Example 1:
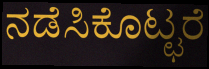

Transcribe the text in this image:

ನಡೆಸಿಕೊಟ್ಟರೆ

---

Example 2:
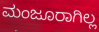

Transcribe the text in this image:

ಮಂಜೂರಾಗಿಲ್ಲ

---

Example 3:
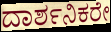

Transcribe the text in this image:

ದಾರ್ಶನಿಕರೇ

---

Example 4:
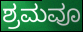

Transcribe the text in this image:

ಶ್ರಮವೂ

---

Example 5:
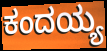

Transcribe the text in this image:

ಕಂದಯ್ಯ